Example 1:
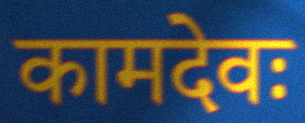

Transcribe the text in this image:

कामदेवः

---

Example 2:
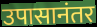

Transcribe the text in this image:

उपासानंतर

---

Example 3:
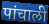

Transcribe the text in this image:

पांचाली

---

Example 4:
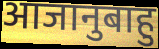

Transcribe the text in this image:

आजानुबाहु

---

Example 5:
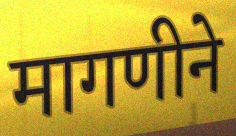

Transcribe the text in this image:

मागणीने